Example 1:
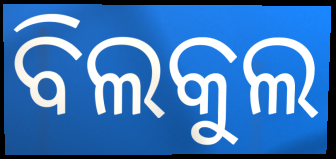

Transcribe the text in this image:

ବିଲକୁଲ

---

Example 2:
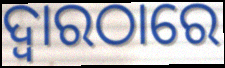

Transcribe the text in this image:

ଦ୍ୱାରଠାରେ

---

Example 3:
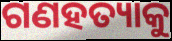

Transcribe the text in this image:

ଗଣହତ୍ୟାକୁ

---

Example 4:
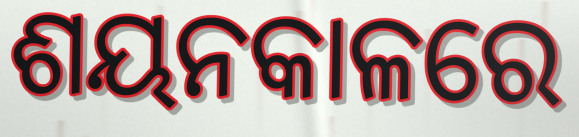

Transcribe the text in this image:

ଶୟନକାଳରେ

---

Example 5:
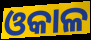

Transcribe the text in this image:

ଓକାଳ